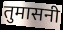
तुमासनी